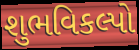
શુભવિકલ્પો